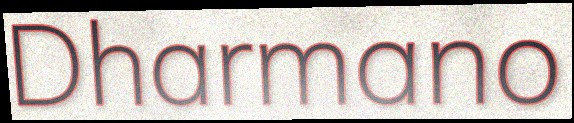
Dharmano